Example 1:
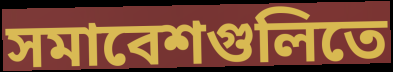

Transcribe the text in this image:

সমাবেশগুলিতে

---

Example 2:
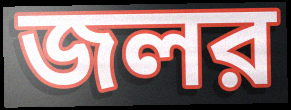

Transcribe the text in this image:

জলর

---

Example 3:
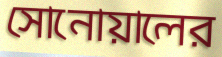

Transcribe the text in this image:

সোনোয়ালের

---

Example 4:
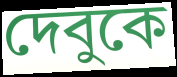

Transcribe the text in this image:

দেবুকে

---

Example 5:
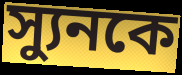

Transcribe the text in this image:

স্যুনকে